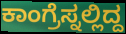
ಕಾಂಗ್ರೆಸ್ನಲ್ಲಿದ್ದ